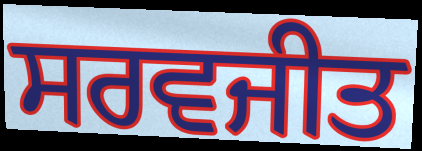
ਸਰਵਜੀਤ